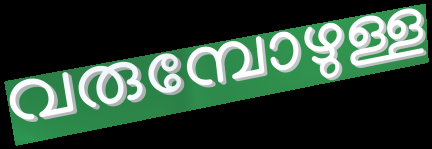
വരുമ്പോഴുള്ള